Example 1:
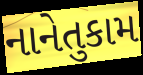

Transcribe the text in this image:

નાનેતુકામ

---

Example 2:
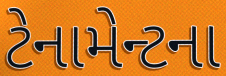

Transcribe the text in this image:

ટેનામેન્ટના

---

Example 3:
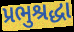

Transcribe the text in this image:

પ્રભુશ્રદ્ધા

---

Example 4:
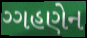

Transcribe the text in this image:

ગ્ગહણેન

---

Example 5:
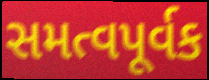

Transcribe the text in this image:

સમત્વપૂર્વક